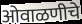
ओवाळणीचे